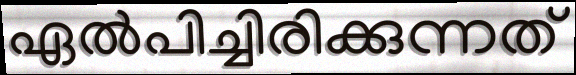
ഏൽപിച്ചിരിക്കുന്നത്